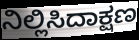
ನಿಲ್ಲಿಸಿದಾಕ್ಷಣ